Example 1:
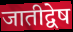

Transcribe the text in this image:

जातीद्वेष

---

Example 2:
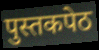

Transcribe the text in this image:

पुस्तकपेठ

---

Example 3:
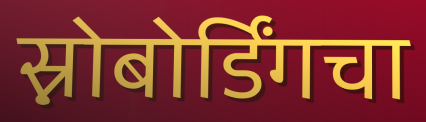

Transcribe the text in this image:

स्नोबोर्डिंगचा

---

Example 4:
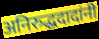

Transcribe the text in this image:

अनिरुद्धदादांनी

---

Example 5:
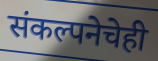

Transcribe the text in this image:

संकल्पनेचेही